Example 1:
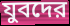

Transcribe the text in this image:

যুবদের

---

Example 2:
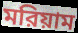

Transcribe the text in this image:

মরিয়াম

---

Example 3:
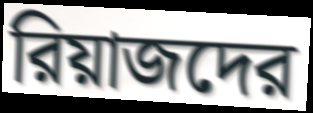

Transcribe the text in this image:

রিয়াজদের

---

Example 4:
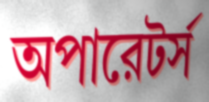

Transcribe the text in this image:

অপারেটর্স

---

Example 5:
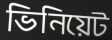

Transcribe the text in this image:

ভিনিয়েট